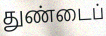
துண்டைப்